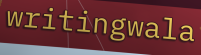
writingwala